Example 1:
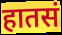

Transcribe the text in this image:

हातसं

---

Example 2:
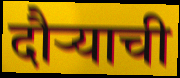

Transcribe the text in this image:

दौर्‍याची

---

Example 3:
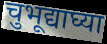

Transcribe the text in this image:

चुभूद्याघ्या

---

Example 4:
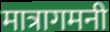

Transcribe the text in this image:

मात्रागमनी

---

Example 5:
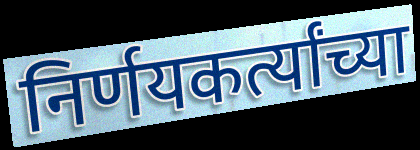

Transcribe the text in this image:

निर्णयकर्त्यांच्या